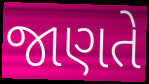
જાણતે